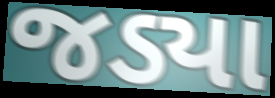
જડ્યા